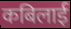
कबिलाई